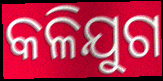
କଳିଯୁଗ